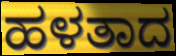
ಹಳತಾದ